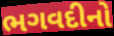
ભગવદીનો